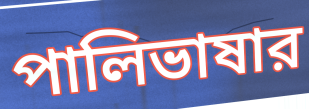
পালিভাষার